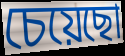
চেয়েছো